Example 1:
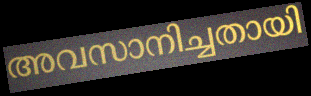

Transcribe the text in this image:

അവസാനിച്ചതായി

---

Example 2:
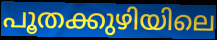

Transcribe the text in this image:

പൂതക്കുഴിയിലെ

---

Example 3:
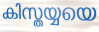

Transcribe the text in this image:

കിസ്തയ്യയെ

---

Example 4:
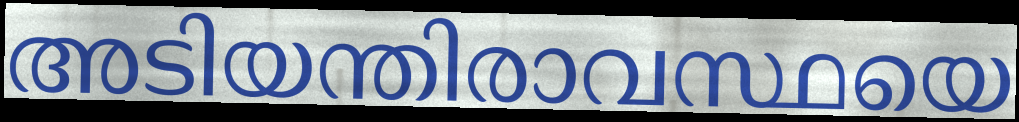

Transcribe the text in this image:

അടിയന്തിരാവസ്ഥയെ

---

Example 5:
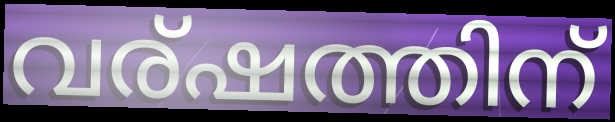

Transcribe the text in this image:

വര്ഷത്തിന്